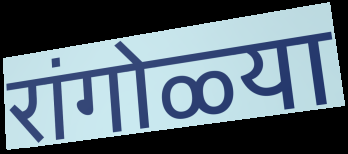
रांगोळ्या